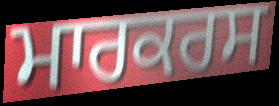
ਮਾਰਕਰਸ